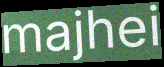
majhei